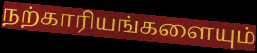
நற்காரியங்களையும்